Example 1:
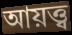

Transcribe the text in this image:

আয়ত্ত্ব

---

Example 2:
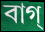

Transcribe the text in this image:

বাগ্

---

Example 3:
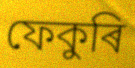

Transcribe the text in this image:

ফেকুৰি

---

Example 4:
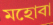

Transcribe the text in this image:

মহোবা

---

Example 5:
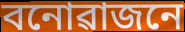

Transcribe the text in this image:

বনোৱাজনে